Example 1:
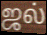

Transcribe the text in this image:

ஜல்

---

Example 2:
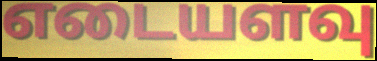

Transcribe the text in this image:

எடையளவு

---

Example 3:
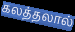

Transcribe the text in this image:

கலத்தலால்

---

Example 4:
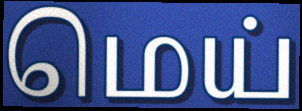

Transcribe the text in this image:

மெய்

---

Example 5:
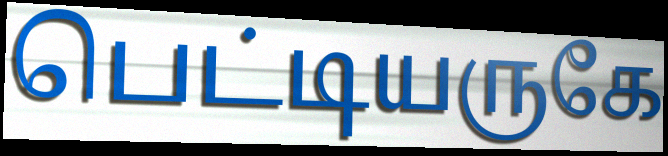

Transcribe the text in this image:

பெட்டியருகே